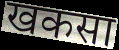
खकसा